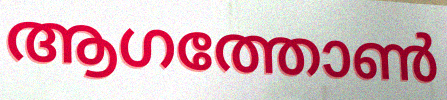
ആഗത്തോൺ